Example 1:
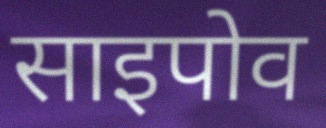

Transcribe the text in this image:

साइपोव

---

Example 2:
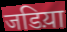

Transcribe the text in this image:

जडिय़ा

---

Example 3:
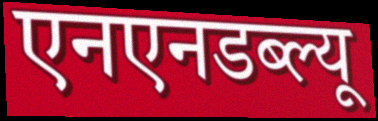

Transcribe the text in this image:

एनएनडब्ल्यू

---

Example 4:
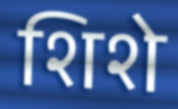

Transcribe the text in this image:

शिशे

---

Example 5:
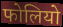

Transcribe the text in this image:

फोलियो